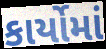
કાર્યોમાં